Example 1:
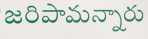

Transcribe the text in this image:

జరిపామన్నారు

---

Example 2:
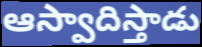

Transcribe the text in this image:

ఆస్వాదిస్తాడు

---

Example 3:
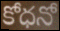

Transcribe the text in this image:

కోధనో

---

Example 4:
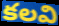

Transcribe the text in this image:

కలవి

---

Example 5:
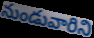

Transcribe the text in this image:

నుండువారిని